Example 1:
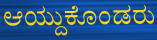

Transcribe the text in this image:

ಆಯ್ದುಕೊಂಡರು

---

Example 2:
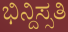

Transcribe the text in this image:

ಭಿನ್ದಿಸ್ಸತಿ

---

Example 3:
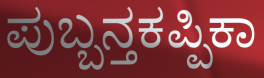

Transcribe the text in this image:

ಪುಬ್ಬನ್ತಕಪ್ಪಿಕಾ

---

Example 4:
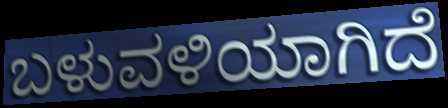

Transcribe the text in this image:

ಬಳುವಳಿಯಾಗಿದೆ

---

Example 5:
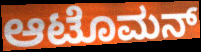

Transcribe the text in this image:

ಆಟೊಮನ್